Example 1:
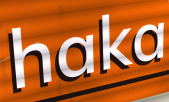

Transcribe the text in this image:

haka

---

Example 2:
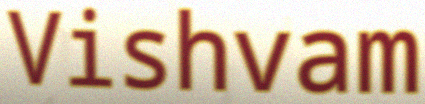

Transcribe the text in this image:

Vishvam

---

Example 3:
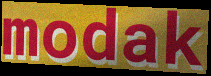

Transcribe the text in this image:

modak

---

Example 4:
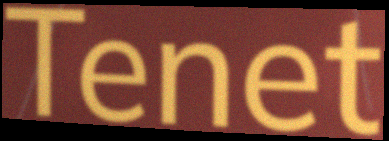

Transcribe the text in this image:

Tenet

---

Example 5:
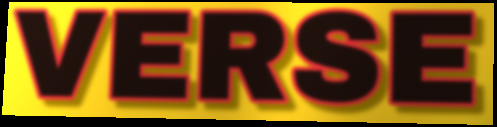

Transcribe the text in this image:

VERSE